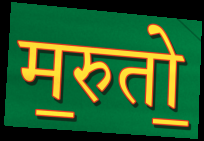
म॒रुतो॒